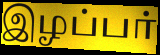
இழப்பர்